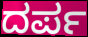
ದರ್ಪ